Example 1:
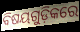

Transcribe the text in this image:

ବିଷୟଗୁଡ଼ିକରେ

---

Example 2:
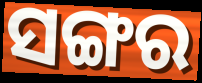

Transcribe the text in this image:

ସଙ୍ଗର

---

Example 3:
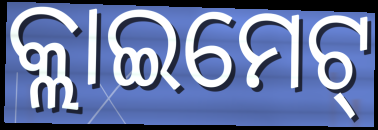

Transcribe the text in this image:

କ୍ଲାଇମେଟ୍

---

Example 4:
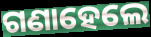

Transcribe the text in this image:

ଗଣାହେଲେ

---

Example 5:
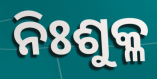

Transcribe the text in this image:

ନିଃଶୁକ୍ଳ